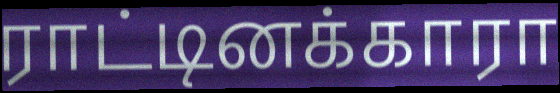
ராட்டினக்காரா